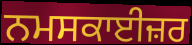
ਨਮਸਕਾਈਜ਼ਰ